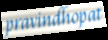
pravindhopat